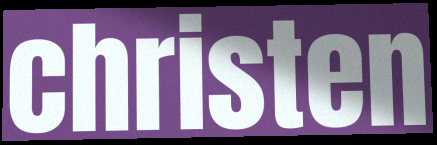
christen